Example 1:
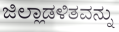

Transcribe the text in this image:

ಜಿಲ್ಲಾಡಳಿತವನ್ನು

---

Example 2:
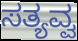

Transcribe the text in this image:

ಸತ್ಯವ್ವ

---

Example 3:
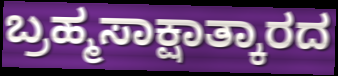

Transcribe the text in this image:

ಬ್ರಹ್ಮಸಾಕ್ಷಾತ್ಕಾರದ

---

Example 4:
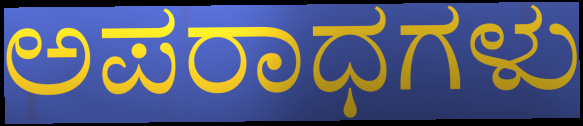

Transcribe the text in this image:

ಅಪರಾಧಗಳು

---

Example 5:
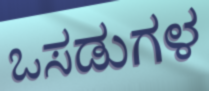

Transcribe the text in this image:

ಒಸಡುಗಳ